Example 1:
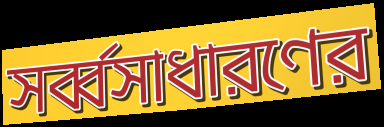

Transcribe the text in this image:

সর্ব্বসাধারণের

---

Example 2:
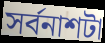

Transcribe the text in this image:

সর্বনাশটা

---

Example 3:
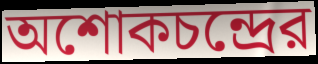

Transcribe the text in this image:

অশোকচন্দ্রের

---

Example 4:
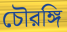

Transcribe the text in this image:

চৌরঙ্গি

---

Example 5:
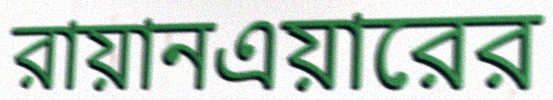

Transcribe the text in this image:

রায়ানএয়ারের